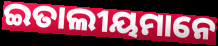
ଇତାଲୀୟମାନେ